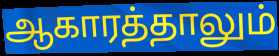
ஆகாரத்தாலும்